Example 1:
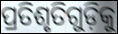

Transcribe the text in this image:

ପ୍ରତିଶୃତିଗୁଡ଼ିକୁ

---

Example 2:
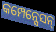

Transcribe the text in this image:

କମ୍ପେନ୍ସେସନ୍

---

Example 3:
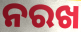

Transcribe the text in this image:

ନରଖ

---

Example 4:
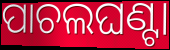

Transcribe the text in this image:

ପାଚଲଘଣ୍ଟା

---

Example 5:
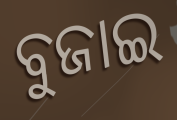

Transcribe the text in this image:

ବୁଜାଇ